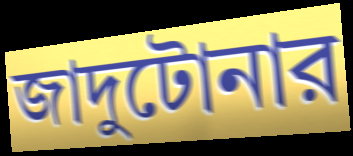
জাদুটোনার